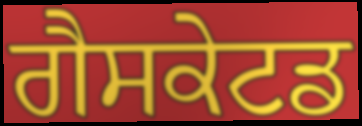
ਗੈਸਕੇਟਡ